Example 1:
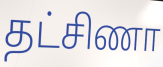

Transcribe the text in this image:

தட்சிணா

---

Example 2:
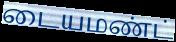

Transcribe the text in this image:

டையமண்ட்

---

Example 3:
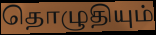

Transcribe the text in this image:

தொழுதியும்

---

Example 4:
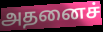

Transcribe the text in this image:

அதனைச்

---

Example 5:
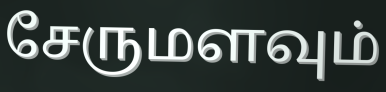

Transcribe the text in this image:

சேருமளவும்